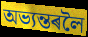
অভ্যন্তৰলৈ